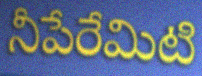
నీపేరేమిటి